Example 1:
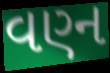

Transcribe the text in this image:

વણ્ન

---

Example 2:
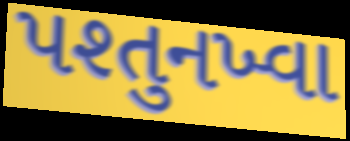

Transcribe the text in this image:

પશ્તુનખ્વા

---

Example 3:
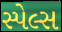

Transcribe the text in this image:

સ્પેલ્સ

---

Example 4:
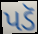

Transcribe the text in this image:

પડૅ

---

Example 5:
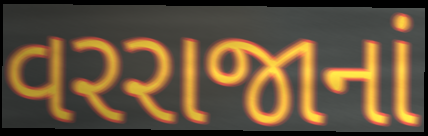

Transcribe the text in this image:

વરરાજાનાં